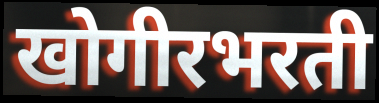
खोगीरभरती